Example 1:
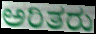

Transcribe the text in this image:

ಅರಿತರು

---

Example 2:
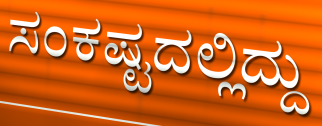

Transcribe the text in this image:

ಸಂಕಷ್ಟದಲ್ಲಿದ್ದು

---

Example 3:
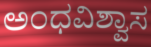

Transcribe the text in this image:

ಅಂಧವಿಶ್ವಾಸ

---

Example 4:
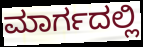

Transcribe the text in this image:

ಮಾರ್ಗದಲ್ಲಿ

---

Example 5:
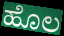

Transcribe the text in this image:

ಹೊಲ